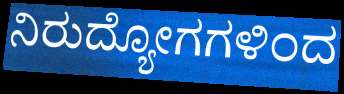
ನಿರುದ್ಯೋಗಗಳಿಂದ